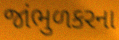
જાંભુળકરના